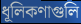
ধূলিকণাগুলি